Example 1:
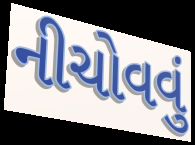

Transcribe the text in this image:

નીચોવવું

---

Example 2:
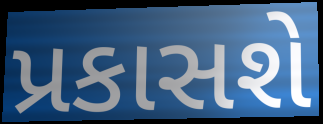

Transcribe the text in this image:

પ્રકાસશે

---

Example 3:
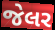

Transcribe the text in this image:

જેલર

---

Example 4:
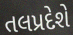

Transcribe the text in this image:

તલપ્રદેશે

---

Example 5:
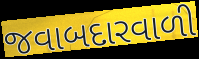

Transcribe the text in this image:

જવાબદારવાળી